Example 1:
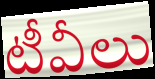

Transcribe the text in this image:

టీవీలు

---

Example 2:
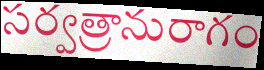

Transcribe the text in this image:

సర్వత్రానురాగం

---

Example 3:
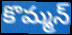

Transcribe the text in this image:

కొమ్మన్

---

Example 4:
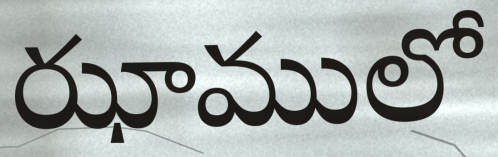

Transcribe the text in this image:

ఝాములో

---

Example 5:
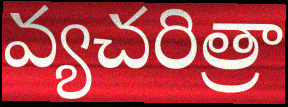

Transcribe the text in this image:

వ్యచరిత్రా